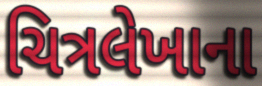
ચિત્રલેખાના